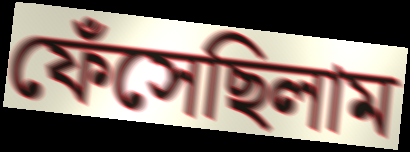
ফেঁসেছিলাম